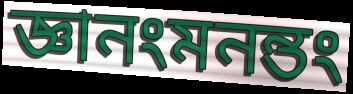
জ্ঞানংমনন্তং